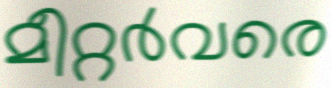
മീറ്റർവരെ